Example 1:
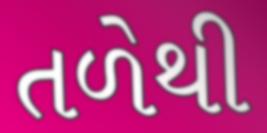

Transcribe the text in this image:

તળેથી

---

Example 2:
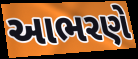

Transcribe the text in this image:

આભરણે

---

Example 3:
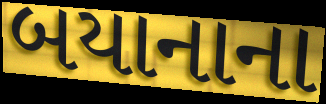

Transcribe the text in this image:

બયાનાના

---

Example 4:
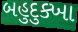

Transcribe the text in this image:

બહુદુક્ખા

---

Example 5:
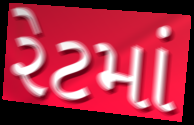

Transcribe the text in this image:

રેટમાં